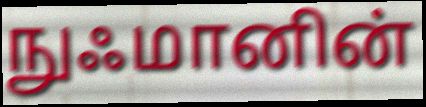
நுஃமானின்